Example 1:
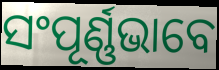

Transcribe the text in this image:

ସଂପୂର୍ଣ୍ଣଭାବେ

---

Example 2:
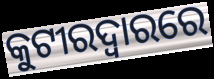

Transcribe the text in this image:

କୁଟୀରଦ୍ୱାରରେ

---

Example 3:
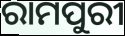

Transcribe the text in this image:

ରାମପୁରୀ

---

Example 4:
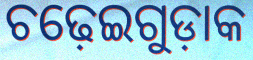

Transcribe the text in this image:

ଚଢ଼େଇଗୁଡ଼ାକ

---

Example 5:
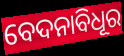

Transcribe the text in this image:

ବେଦନାବିଧୂର